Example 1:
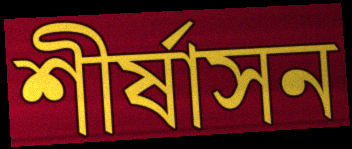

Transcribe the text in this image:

শীর্ষাসন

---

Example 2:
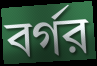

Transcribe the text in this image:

বর্গর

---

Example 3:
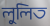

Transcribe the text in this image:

লুলিত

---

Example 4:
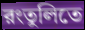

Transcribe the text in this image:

রংতুলিতে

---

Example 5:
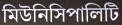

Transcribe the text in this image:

মিউনিসিপালিটি